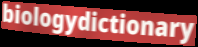
biologydictionary